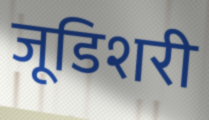
जूडिशरी